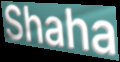
Shaha